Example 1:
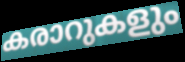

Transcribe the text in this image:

കരാറുകളും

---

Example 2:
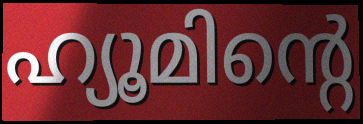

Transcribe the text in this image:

ഹ്യൂമിന്റെ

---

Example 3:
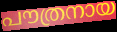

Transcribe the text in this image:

പൗത്രനായ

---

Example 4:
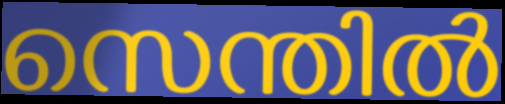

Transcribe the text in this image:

സെന്തിൽ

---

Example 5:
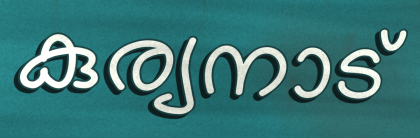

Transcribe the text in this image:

കുര്യനാട്